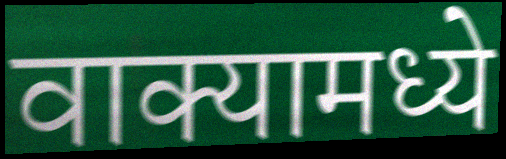
वाक्यामध्ये